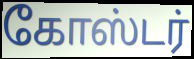
கோஸ்டர்